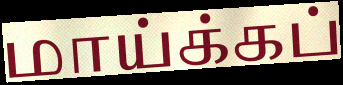
மாய்க்கப்